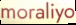
moraliyo